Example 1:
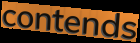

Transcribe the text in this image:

contends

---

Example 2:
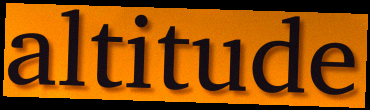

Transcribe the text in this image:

altitude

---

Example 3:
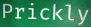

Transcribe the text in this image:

Prickly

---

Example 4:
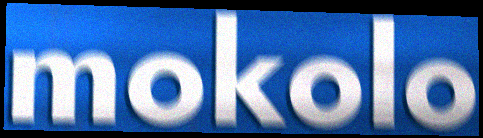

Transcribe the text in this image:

mokolo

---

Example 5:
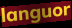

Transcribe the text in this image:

languor